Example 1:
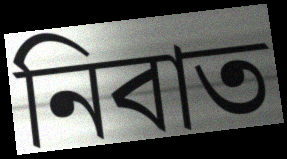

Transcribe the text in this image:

নিবাত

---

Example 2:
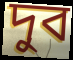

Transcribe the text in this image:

দুব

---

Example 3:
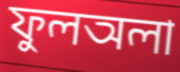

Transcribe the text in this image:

ফুলঅলা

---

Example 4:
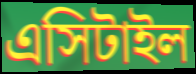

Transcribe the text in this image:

এসিটাইল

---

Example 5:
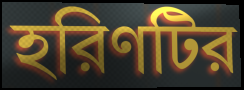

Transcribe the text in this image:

হরিণটির